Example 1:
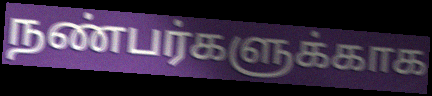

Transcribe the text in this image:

நண்பர்களுக்காக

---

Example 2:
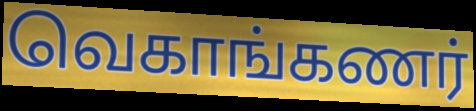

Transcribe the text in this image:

வெகாங்கணர்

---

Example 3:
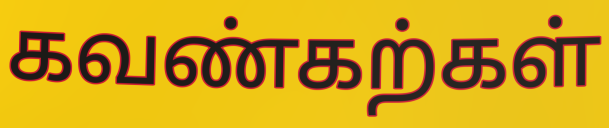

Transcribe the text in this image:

கவண்கற்கள்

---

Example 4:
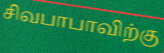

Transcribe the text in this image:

சிவபாபாவிற்கு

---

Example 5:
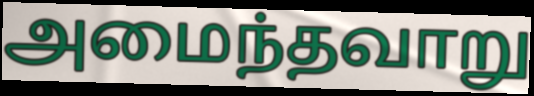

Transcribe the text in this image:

அமைந்தவாறு